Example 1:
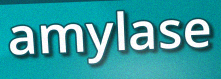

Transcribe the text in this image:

amylase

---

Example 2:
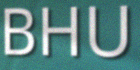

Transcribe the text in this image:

BHU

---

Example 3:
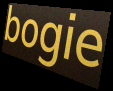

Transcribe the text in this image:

bogie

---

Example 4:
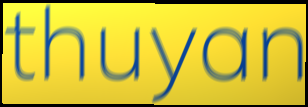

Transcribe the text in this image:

thuyan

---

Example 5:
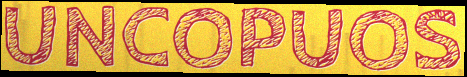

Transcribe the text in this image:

UNCOPUOS